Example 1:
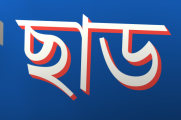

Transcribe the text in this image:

ছাড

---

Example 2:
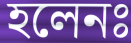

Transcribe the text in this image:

হলেনঃ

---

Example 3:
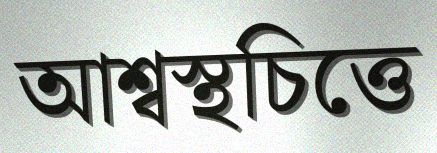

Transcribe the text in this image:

আশ্বস্থচিত্তে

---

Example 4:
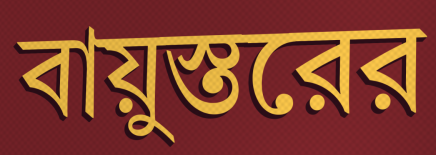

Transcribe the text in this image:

বায়ুস্তরের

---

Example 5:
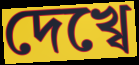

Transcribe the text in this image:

দেখ্বে